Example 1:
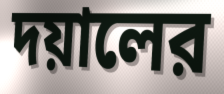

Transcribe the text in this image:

দয়ালের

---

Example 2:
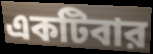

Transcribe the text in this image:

একটিবার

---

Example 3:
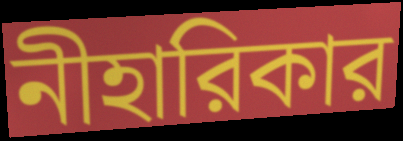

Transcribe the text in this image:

নীহারিকার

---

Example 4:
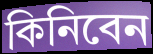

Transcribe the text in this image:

কিনিবেন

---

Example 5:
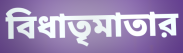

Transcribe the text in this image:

বিধাতৃমাতার